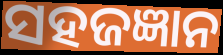
ସହଜଜ୍ଞାନ